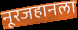
नूरजहानला